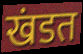
खंडत